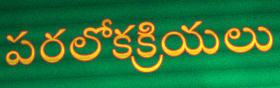
పరలోకక్రియలు